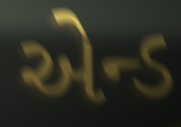
એન્ડ